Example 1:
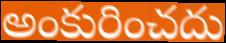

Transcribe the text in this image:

అంకురించదు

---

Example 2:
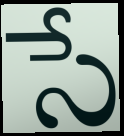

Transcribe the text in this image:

సే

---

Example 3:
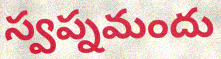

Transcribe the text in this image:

స్వప్నమందు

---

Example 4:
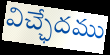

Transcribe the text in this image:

విచ్ఛేదము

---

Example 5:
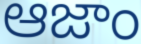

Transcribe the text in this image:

ఆజాం